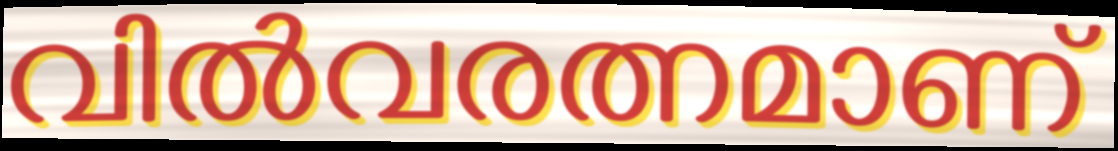
വിൽവരത്നമാണ്